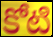
కోటి